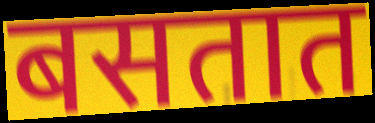
बसतात